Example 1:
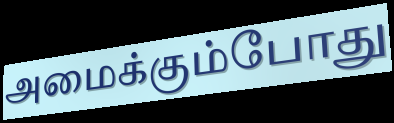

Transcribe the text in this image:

அமைக்கும்போது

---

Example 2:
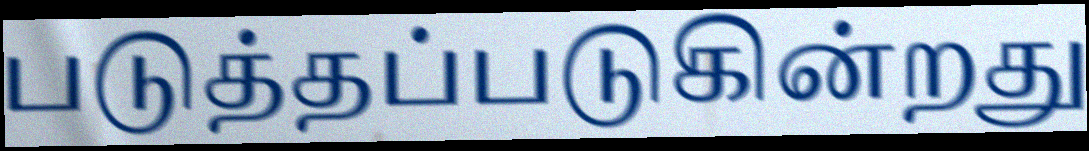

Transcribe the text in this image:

படுத்தப்படுகின்றது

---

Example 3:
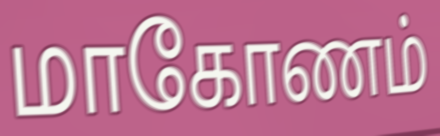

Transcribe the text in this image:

மாகோணம்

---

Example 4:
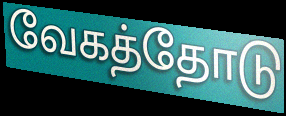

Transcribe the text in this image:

வேகத்தோடு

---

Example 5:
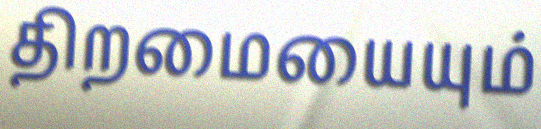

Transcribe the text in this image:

திறமையையும்